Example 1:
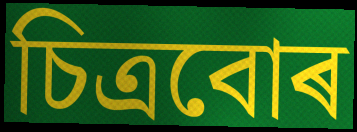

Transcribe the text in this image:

চিত্ৰবোৰ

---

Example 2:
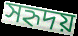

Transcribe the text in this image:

সহৃদয়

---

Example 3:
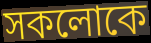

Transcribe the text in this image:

সকলোকে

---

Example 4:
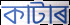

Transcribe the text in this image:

কাটাৰ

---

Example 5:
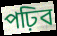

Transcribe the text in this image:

পঢ়িব